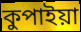
কুপাইয়া